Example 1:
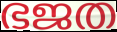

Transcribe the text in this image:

ഭജത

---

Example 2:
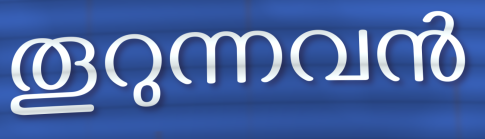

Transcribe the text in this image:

തൂറുന്നവൻ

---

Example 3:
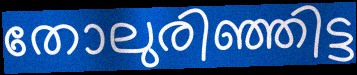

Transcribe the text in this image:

തോലുരിഞ്ഞിട്ട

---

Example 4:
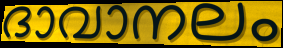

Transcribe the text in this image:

ദാവാനലം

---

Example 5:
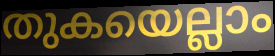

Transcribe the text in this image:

തുകയെല്ലാം